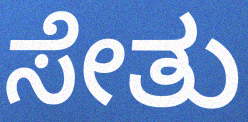
ಸೇತು